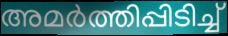
അമർത്തിപ്പിടിച്ച്